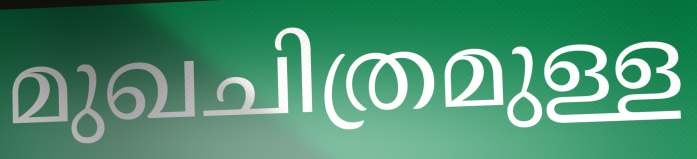
മുഖചിത്രമുള്ള